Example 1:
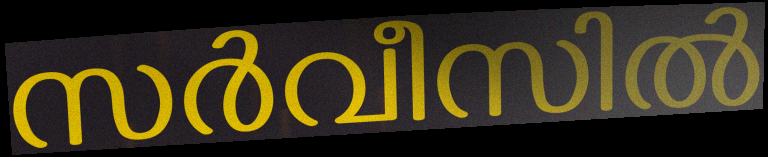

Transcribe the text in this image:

സർവീസിൽ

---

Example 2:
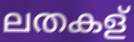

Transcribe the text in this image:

ലതകള്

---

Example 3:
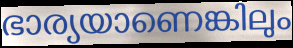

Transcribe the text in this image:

ഭാര്യയാണെങ്കിലും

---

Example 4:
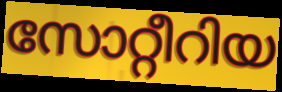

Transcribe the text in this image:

സോറ്റീറിയ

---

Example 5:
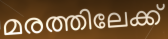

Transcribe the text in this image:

മരത്തിലേക്ക്